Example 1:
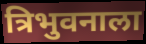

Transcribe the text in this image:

त्रिभुवनाला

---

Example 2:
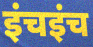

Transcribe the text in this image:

इंचइंच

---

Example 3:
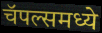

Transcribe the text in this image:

चॅपल्समध्ये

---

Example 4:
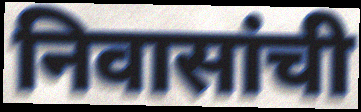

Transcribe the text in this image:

निवासांची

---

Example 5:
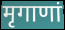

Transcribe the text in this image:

मृगाणां